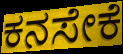
ಕನಸೇಕೆ